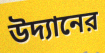
উদ্যানের